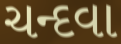
ચન્દવા